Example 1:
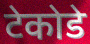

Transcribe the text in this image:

टेकोडे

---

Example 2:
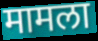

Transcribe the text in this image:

मामला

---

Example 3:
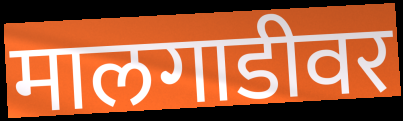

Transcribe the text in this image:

मालगाडीवर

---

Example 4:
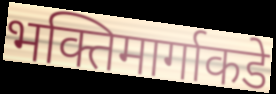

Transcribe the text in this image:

भक्तिमार्गाकडे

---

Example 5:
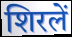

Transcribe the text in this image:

शिरलें